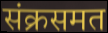
संक्रसमत